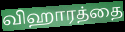
விஹாரத்தை